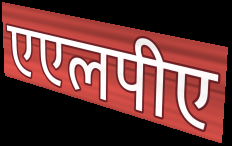
एएलपीए